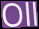
Oll